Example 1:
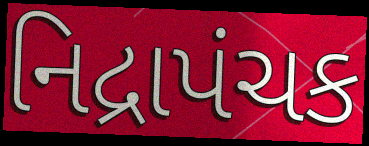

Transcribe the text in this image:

નિદ્રાપંચક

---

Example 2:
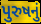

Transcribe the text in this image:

પુરુષનું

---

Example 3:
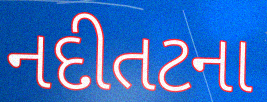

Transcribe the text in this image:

નદીતટના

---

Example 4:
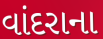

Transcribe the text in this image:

વાંદરાના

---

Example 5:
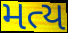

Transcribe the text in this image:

મત્ય